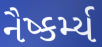
નૈષ્કર્મ્ય